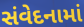
સંવેદનામાં